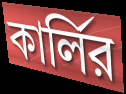
কার্লির